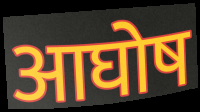
आघोष